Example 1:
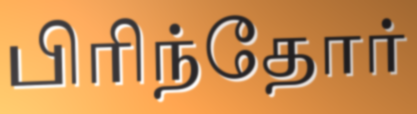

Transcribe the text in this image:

பிரிந்தோர்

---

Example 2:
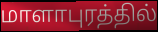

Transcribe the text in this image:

மாளாபுரத்தில்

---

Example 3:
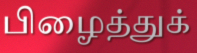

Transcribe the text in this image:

பிழைத்துக்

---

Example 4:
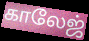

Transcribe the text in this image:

காலேஜ்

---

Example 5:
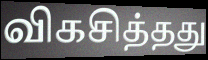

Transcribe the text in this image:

விகசித்தது